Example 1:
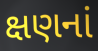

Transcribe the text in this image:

ક્ષણનાં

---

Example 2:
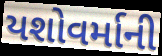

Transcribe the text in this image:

યશોવર્માની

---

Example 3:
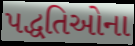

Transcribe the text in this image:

પદ્ધતિઓના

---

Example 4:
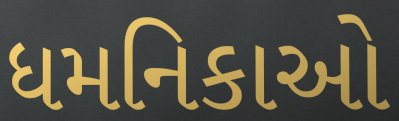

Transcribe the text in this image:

ધમનિકાઓ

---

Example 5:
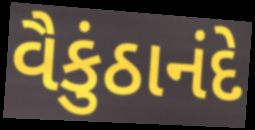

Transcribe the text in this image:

વૈકુંઠાનંદે